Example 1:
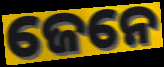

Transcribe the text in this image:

ଜେନେ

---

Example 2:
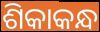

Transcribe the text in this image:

ଶିକାକନ୍ଧ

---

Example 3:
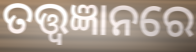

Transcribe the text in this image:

ତତ୍ତ୍ୱଜ୍ଞାନରେ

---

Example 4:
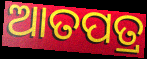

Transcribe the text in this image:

ଆତପତ୍ର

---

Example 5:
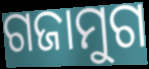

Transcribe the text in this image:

ଗଜାମୁଗ